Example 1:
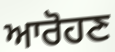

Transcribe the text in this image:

ਆਰੋਹਣ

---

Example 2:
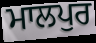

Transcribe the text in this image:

ਮਾਲਪੁਰ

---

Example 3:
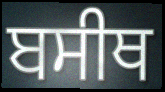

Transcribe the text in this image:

ਬਸੀਥ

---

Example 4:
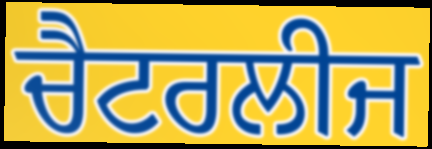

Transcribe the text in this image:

ਚੈਟਰਲੀਜ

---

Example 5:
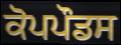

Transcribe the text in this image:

ਕੋਪਪੌਡਸ